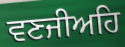
ਵਣਜੀਅਹਿ